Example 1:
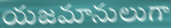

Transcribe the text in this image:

యజమానులుగా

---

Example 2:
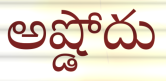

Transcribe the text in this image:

అష్డోదు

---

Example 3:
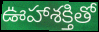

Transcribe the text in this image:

ఊహాశక్తితో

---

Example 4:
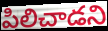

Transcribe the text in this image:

పిలిచాడని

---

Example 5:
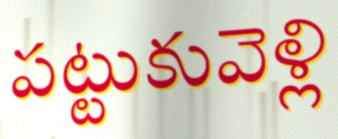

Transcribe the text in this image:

పట్టుకువెళ్లి